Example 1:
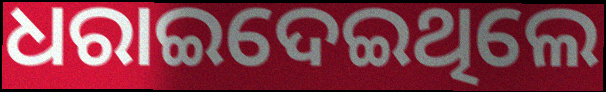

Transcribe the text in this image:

ଧରାଇଦେଇଥିଲେ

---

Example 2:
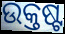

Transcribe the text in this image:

ଉକ୍ତଷ୍ଟ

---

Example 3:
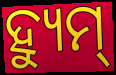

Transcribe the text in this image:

ହ୍ୟୁମ୍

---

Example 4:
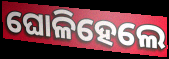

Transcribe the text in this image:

ଘୋଳିହେଲେ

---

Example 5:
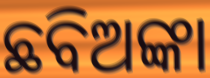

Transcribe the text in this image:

ଛବିଅଙ୍କା